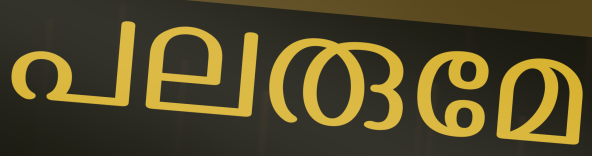
പലരുമേ